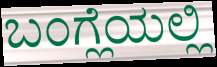
ಬಂಗ್ಲೆಯಲ್ಲಿ